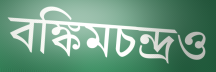
বঙ্কিমচন্দ্রও